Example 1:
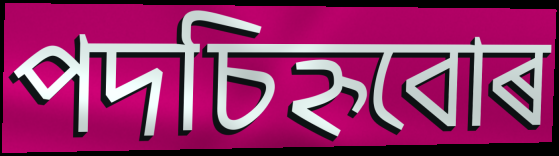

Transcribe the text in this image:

পদচিহ্নবোৰ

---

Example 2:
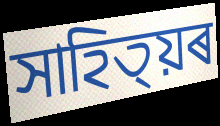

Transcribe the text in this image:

সাহিত্য়ৰ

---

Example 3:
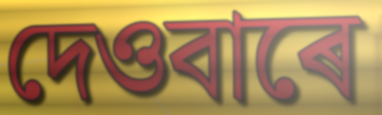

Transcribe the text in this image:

দেওবাৰে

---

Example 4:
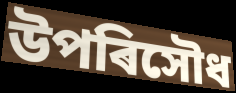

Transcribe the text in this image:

উপৰিসৌধ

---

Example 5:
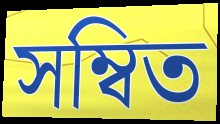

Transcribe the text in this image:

সম্বিত